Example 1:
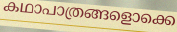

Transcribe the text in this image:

കഥാപാത്രങ്ങളൊക്കെ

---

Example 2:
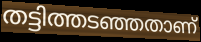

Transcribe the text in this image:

തട്ടിത്തടഞ്ഞതാണ്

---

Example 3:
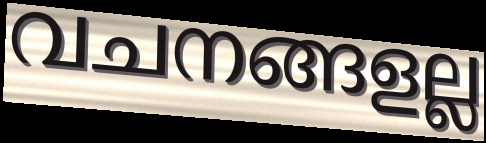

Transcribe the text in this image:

വചനങ്ങളല്ല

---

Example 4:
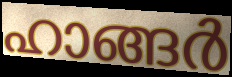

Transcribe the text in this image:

ഹാങ്ങർ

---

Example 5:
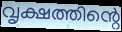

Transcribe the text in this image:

വൃക്ഷത്തിന്റെ